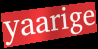
yaarige